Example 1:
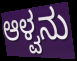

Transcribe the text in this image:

ಆಳ್ವನು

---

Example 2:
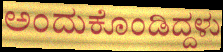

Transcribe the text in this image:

ಅಂದುಕೊಂಡಿದ್ದಳು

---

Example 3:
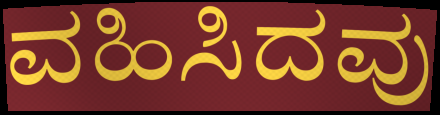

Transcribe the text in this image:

ವಹಿಸಿದವು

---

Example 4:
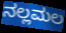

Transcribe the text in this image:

ನಲ್ಲಮಲ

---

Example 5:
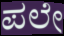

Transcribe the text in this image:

ಪಲೇ